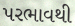
પરભાવથી